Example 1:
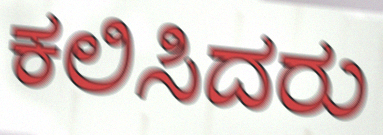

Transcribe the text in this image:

ಕಲಿಸಿದರು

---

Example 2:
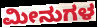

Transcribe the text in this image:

ಮೀನುಗಳ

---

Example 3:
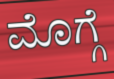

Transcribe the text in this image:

ಮೊಗ್ಗೆ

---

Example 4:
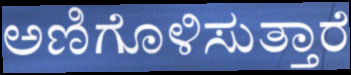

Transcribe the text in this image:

ಅಣಿಗೊಳಿಸುತ್ತಾರೆ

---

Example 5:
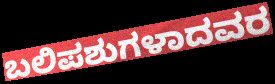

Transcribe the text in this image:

ಬಲಿಪಶುಗಳಾದವರ